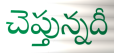
చెప్తున్నదీ